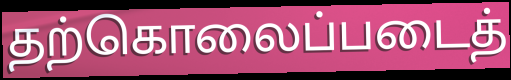
தற்கொலைப்படைத்